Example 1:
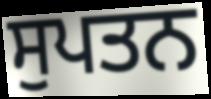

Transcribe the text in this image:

ਸੁਪਤਨ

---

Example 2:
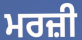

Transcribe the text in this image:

ਮਰਜ਼ੀ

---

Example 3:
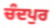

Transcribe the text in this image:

ਚੰਦਪੁਰ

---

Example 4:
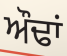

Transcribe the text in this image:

ਔਢਾਂ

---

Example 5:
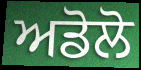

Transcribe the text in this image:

ਅਡੋਲੋ